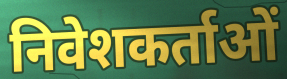
निवेशकर्ताओं